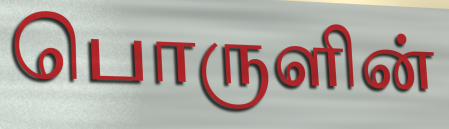
பொருளின்